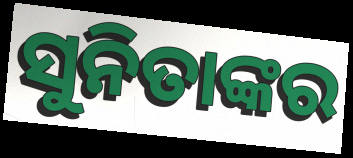
ସୁନିତାଙ୍କର